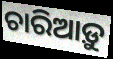
ଚାରିଆଡ଼ୁ